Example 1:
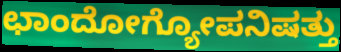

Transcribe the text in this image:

ಛಾಂದೋಗ್ಯೋಪನಿಷತ್ತು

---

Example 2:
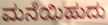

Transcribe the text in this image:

ಮನೆಯಿಹುದು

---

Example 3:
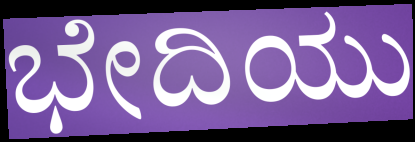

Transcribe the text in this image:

ಭೇದಿಯು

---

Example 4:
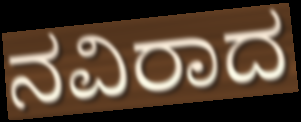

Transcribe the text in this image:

ನವಿರಾದ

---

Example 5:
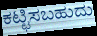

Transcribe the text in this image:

ಕಟ್ಟಿಸಬಹುದು